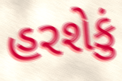
હરશેકું